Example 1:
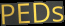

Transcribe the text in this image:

PEDs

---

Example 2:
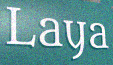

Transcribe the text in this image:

Laya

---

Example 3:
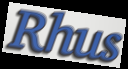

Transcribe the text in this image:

Rhus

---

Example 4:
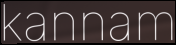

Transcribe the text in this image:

kannam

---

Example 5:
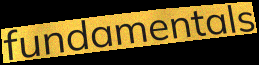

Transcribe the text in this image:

fundamentals